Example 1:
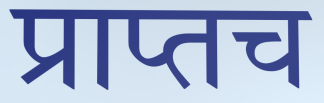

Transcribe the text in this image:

प्राप्तच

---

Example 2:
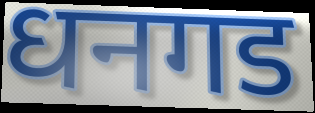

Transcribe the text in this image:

धनगड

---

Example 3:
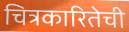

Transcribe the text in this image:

चित्रकारितेची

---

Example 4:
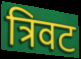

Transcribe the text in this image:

त्रिवट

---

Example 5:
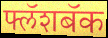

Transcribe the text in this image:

फ्लॅशबॅक